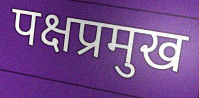
पक्षप्रमुख